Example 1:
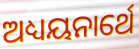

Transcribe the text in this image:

ଅଧ୍ୟୟନାର୍ଥେ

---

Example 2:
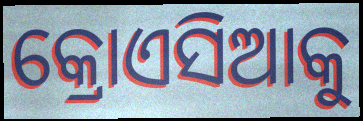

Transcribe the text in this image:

କ୍ରୋଏସିଆକୁ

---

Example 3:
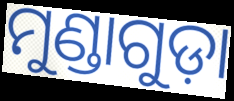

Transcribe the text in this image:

ମୁଣ୍ଡାଗୁଡ଼ା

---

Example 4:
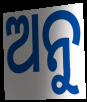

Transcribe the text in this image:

ଅନୁ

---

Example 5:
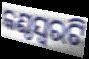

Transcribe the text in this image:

କଣ୍ଠସ୍ଵରଟି